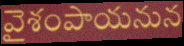
వైశంపాయనున